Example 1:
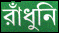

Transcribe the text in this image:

রাঁধুনি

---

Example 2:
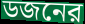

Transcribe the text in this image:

ডজনের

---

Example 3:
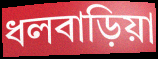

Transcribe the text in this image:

ধলবাড়িয়া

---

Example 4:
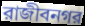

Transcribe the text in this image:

রাজীবনগর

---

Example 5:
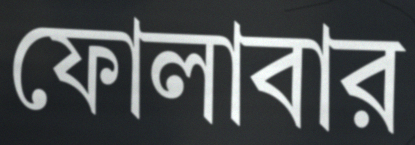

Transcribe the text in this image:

ফোলাবার